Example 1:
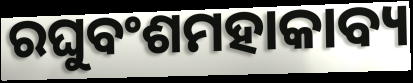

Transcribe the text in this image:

ରଘୁବଂଶମହାକାବ୍ୟ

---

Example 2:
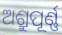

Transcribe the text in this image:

ଅଶ୍ରୁପୂର୍ଣ୍ଣ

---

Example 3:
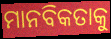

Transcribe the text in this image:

ମାନବିକତାକୁ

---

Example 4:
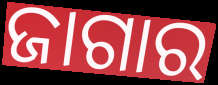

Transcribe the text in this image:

ଜାଗାର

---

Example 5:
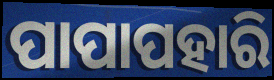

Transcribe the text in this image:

ପାପାପହାରି